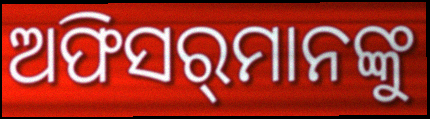
ଅଫିସର୍‌ମାନଙ୍କୁ